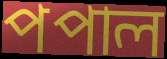
পপাল